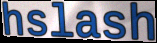
hslash